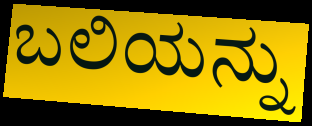
ಬಲಿಯನ್ನು